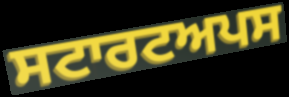
ਸਟਾਰਟਅਪਸ